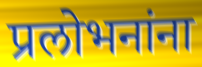
प्रलोभनांना